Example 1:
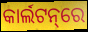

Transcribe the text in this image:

କାର୍ଲଟନ୍‌ରେ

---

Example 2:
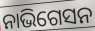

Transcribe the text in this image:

ନାଭିଗେସନ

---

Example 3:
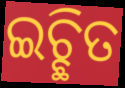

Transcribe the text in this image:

ଇଚ୍ଛିତ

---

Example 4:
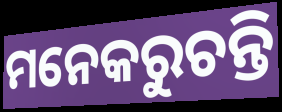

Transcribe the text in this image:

ମନେକରୁଚନ୍ତି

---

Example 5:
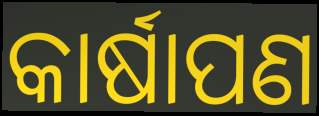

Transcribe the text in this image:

କାର୍ଷାପଣ